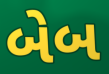
બેબ